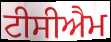
ਟੀਸੀਐਮ